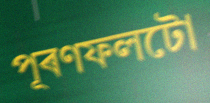
পূৰণফলটো